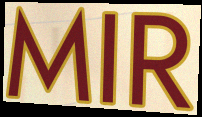
MIR